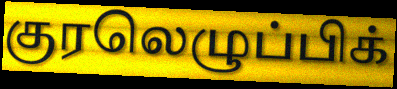
குரலெழுப்பிக்